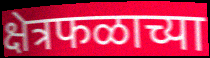
क्षेत्रफळाच्या